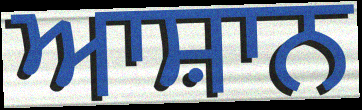
ਆਸ਼ਾਨ